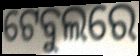
ଟେବୁଲରେ